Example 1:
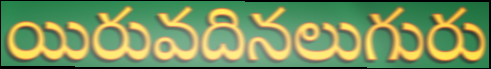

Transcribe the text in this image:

యిరువదినలుగురు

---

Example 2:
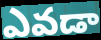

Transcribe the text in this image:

ఎవడా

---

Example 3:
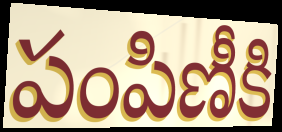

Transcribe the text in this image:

పంపిణీకి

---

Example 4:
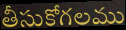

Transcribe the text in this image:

తీసుకోగలము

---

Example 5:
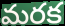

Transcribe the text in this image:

మరక